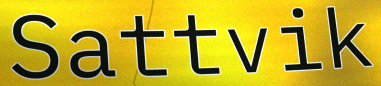
Sattvik